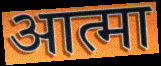
आत्मा